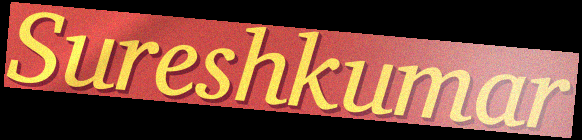
Sureshkumar